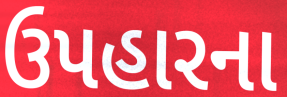
ઉપહારના